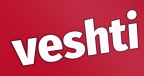
veshti